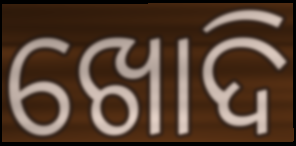
ଖୋଦି